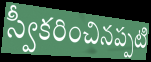
స్వీకరించినప్పటి